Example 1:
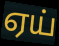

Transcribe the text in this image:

ஏய்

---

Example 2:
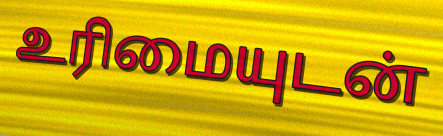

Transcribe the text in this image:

உரிமையுடன்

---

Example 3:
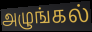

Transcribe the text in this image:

அழுங்கல்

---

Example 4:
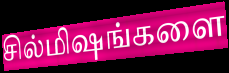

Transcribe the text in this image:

சில்மிஷங்களை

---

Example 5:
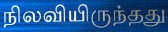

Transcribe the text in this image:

நிலவியிருந்தது